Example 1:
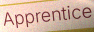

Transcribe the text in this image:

Apprentice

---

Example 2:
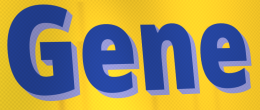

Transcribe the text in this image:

Gene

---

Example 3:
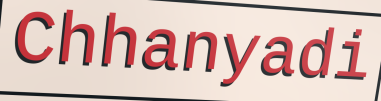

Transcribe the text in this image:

Chhanyadi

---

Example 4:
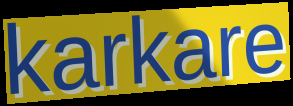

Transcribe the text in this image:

karkare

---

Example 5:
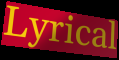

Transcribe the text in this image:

Lyrical